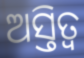
ଅସ୍ତିତ୍ଵ